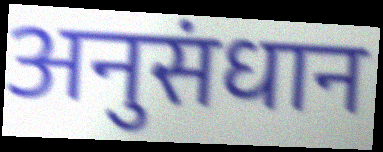
अनुसंधान